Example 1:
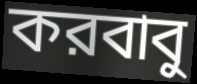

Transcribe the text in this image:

করবাবু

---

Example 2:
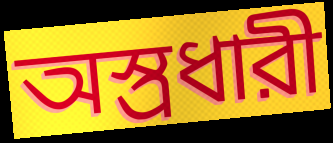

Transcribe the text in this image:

অস্ত্রধারী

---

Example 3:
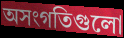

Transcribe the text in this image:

অসংগতিগুলো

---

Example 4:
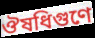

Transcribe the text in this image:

ঔষধিগুণে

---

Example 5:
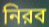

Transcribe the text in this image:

নিরব